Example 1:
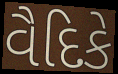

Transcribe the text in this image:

વૈદિકે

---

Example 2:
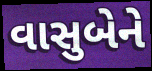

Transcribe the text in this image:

વાસુબેને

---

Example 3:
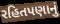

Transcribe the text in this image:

રહિતપણાનું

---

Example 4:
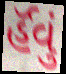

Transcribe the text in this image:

ર્હૅવું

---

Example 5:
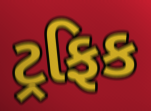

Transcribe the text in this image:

ટ્રફિક